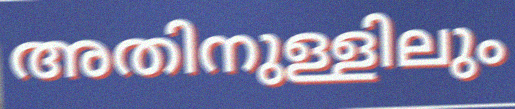
അതിനുള്ളിലും